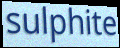
sulphite